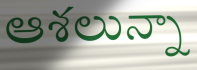
ఆశలున్నా